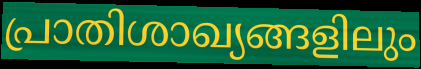
പ്രാതിശാഖ്യങ്ങളിലും